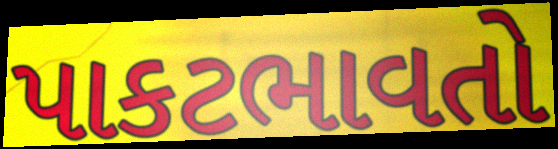
પાકટભાવતો